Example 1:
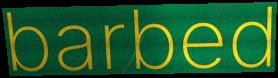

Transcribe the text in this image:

barbed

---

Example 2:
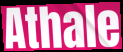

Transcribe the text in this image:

Athale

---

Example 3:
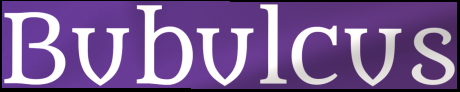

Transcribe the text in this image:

Bubulcus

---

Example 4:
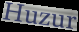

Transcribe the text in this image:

Huzur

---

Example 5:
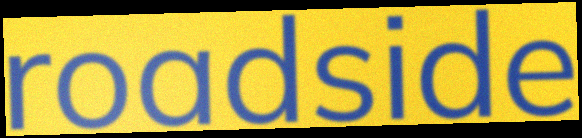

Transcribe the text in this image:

roadside